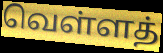
வெள்ளத்